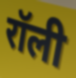
रॉली